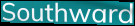
Southward